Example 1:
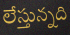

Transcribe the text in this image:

లేస్తున్నది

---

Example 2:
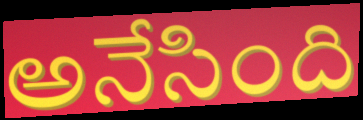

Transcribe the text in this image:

అనేసింది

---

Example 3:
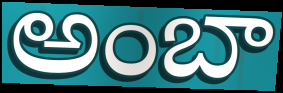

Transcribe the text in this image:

అంబా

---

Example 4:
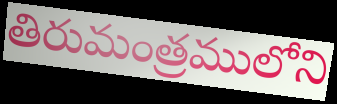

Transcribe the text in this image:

తిరుమంత్రములోని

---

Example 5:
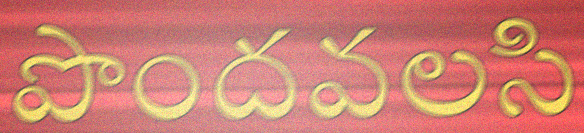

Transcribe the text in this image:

పొందవలసి